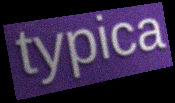
typica